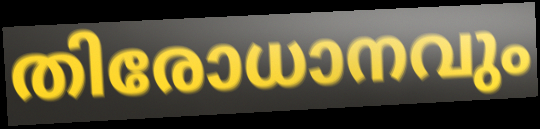
തിരോധാനവും